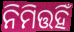
ନିମିତ୍ତହିଁ